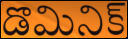
డొమినిక్